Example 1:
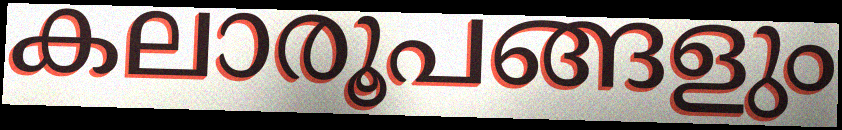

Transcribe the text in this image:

കലാരൂപങ്ങളും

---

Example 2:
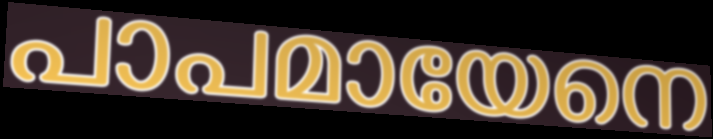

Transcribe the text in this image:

പാപമായേനെ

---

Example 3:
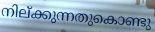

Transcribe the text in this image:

നില്ക്കുന്നതുകൊണ്ടു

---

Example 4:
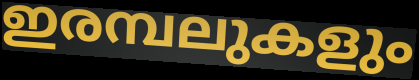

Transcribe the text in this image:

ഇരമ്പലുകളും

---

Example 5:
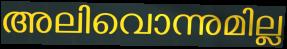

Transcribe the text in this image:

അലിവൊന്നുമില്ല